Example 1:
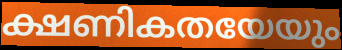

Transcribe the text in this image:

ക്ഷണികതയേയും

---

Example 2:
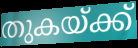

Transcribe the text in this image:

തുകയ്ക്ക്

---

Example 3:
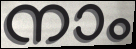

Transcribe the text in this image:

നാം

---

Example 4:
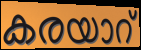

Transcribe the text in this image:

കരയാറ്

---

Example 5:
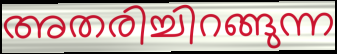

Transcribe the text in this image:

അതരിച്ചിറങ്ങുന്ന